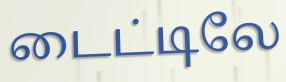
டைட்டிலே